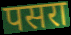
पसरा